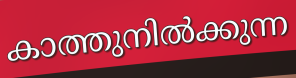
കാത്തുനിൽക്കുന്ന